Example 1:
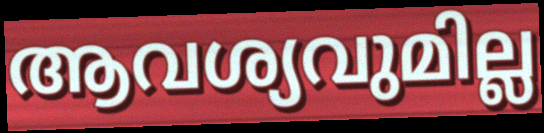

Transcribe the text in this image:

ആവശ്യവുമില്ല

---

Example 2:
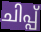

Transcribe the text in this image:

ചിപ്പ്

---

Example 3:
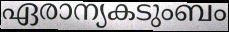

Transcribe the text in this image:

ഏരാന്യകടുംബം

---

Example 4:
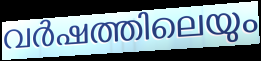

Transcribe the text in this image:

വർഷത്തിലെയും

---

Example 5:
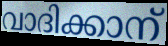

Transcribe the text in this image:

വാദിക്കാന്